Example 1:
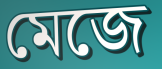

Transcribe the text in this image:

মেজে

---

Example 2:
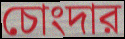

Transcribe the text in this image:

চোংদার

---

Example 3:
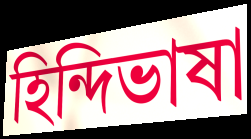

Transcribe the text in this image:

হিন্দিভাষা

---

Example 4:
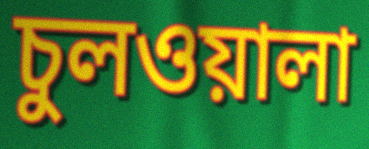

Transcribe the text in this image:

চুলওয়ালা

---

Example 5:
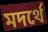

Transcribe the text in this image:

মদর্থে